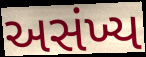
અસંખ્ય